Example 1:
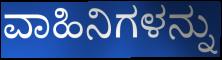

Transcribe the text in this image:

ವಾಹಿನಿಗಳನ್ನು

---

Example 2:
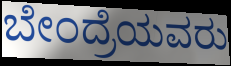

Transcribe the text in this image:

ಬೇಂದ್ರೆಯವರು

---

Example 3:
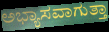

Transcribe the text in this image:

ಅಭ್ಯಾಸವಾಗುತ್ತಾ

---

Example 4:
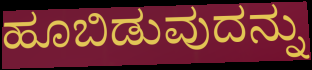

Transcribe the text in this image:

ಹೂಬಿಡುವುದನ್ನು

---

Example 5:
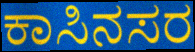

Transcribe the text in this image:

ಕಾಸಿನಸರ